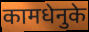
कामधेनुके